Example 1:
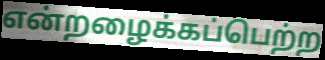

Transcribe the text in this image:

என்றழைக்கப்பெற்ற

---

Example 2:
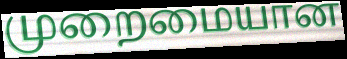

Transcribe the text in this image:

முறைமையான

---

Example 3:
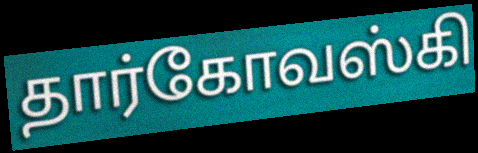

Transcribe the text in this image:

தார்கோவஸ்கி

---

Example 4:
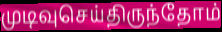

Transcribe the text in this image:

முடிவுசெய்திருந்தோம்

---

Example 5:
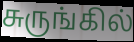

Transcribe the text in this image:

சுருங்கில்